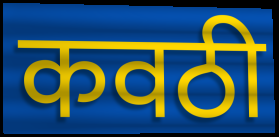
कवठी